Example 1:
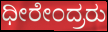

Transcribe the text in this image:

ಧೀರೇಂದ್ರರು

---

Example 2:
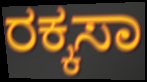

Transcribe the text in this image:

ರಕ್ಕಸಾ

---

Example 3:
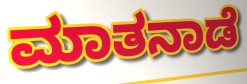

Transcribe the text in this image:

ಮಾತನಾಡೆ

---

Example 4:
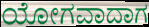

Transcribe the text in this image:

ಯೋಗವಾದಾಗ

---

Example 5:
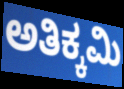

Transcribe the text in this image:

ಅತಿಕ್ಕಮಿ